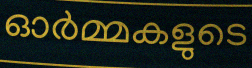
ഓർമ്മകളുടെ